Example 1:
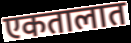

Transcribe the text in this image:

एकतालात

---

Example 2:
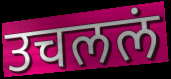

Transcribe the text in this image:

उचललं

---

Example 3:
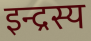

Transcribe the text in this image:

इन्द्रस्य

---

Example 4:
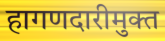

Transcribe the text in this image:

हागणदारीमुक्त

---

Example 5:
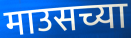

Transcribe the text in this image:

माउसच्या